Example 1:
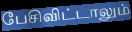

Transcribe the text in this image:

பேசிவிட்டாலும்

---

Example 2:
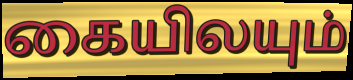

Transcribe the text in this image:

கையிலயும்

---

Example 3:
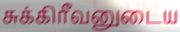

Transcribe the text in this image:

சுக்கிரீவனுடைய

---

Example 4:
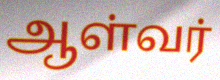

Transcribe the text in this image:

ஆள்வர்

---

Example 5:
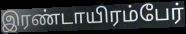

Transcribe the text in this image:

இரண்டாயிரம்பேர்